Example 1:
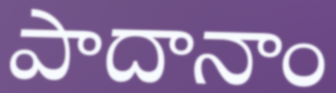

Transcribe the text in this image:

పాదానాం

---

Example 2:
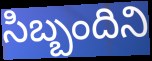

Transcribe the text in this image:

సిబ్బందిని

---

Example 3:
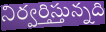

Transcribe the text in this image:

నిర్వర్తిస్తున్నది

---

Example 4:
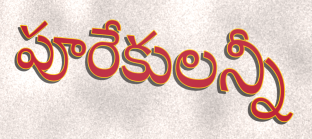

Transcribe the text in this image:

పూరేకులన్నీ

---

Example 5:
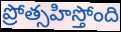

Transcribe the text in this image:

ప్రోత్సహిస్తోంది